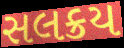
સલક્રય